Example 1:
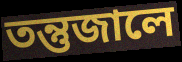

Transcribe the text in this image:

তন্তুজালে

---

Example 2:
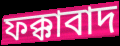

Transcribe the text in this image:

ফক্কাবাদ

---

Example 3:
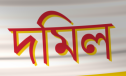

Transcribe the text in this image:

দমিল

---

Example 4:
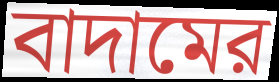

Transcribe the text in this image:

বাদামের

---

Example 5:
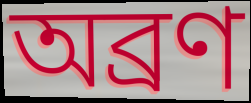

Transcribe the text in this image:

অব্রণ